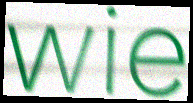
wie